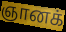
ஞானக்